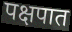
पक्षपात